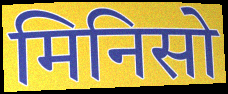
मिनिसो